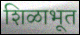
शिळाभूत